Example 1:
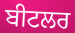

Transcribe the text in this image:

ਬੀਟਲਰ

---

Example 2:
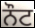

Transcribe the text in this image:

ਨੌਟ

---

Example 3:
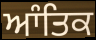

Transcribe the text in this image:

ਆੰਤਿਕ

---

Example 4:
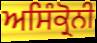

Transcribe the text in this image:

ਅਸਿੰਕ੍ਰੋਨੀ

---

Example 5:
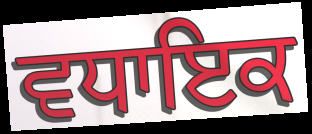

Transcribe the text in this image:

ਵਧਾਇਕ